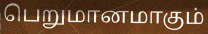
பெறுமானமாகும்